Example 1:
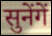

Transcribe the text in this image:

सुनेंगें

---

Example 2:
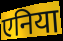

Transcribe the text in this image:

एनिया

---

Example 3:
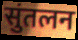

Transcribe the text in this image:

सुंतलन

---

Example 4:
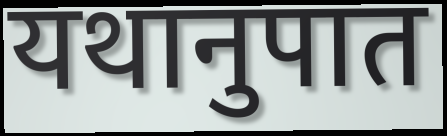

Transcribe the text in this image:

यथानुपात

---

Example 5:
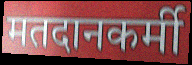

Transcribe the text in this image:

मतदानकर्मी